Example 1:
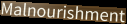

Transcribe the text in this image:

Malnourishment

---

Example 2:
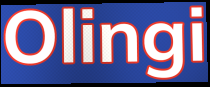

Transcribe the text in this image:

Olingi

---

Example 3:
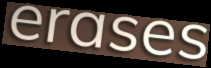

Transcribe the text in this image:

erases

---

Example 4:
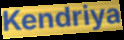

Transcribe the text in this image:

Kendriya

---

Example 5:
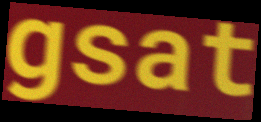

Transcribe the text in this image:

gsat